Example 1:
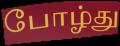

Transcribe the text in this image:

போழ்து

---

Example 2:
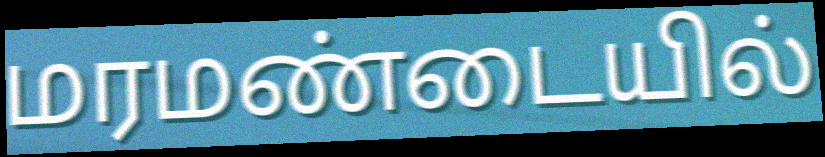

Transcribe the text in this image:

மரமண்டையில்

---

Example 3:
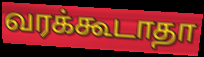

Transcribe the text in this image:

வரக்கூடாதா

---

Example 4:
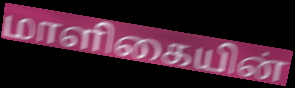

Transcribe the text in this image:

மாளிகையின்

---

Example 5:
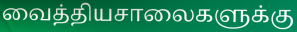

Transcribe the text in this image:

வைத்தியசாலைகளுக்கு